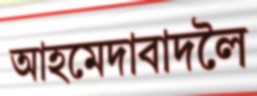
আহমেদাবাদলৈ